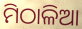
ମିଠାଳିଆ